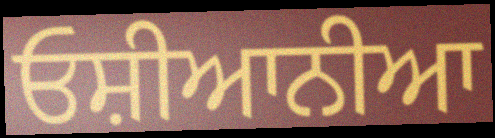
ਓਸ਼ੀਆਨੀਆ